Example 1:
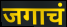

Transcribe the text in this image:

जगाचं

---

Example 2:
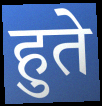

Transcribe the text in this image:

हुते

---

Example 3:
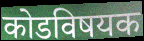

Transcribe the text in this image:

कोडविषयक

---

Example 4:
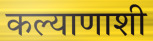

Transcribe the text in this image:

कल्याणाशी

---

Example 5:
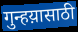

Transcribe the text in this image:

गुन्हय़ासाठी